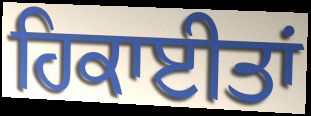
ਹਿਕਾਈਤਾਂ